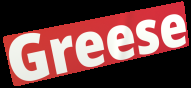
Greese